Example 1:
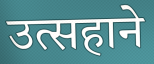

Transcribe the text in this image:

उत्सहाने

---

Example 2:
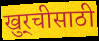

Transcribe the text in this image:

खुर्चीसाठी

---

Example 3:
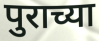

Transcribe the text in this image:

पुराच्या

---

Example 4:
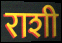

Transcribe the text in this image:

राशी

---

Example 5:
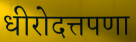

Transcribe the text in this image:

धीरोदत्तपणा